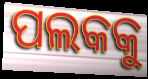
ପଲକକୁ